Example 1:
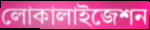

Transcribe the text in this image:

লোকালাইজেশন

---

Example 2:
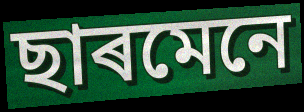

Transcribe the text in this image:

ছাৰমেনে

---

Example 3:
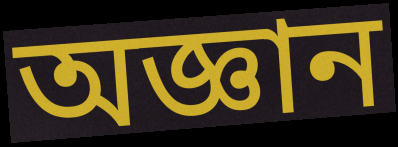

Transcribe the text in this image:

অজ্ঞান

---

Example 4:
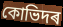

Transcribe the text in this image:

কোভিদৰ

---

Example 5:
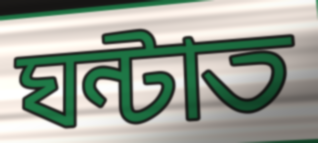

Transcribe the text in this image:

ঘন্টাত